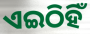
ଏଇଠିହିଁ